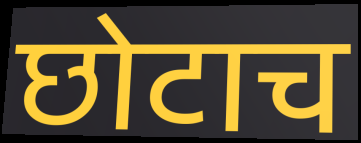
छोटाच